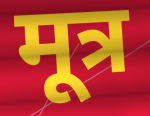
मूत्र